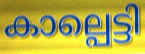
കാല്പെട്ടി